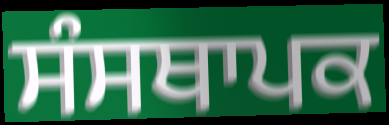
ਸੰਸਥਾਪਕ